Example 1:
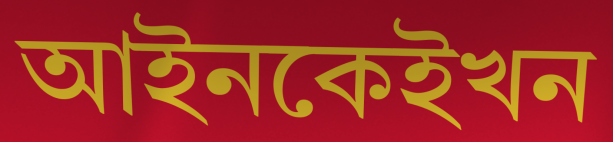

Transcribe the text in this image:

আইনকেইখন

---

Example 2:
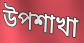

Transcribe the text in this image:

উপশাখা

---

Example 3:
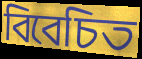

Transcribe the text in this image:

বিবেচিত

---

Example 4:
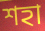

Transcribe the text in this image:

শহা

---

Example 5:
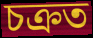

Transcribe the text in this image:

চক্ৰত